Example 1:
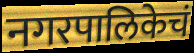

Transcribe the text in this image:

नगरपालिकेचं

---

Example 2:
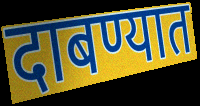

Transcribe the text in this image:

दाबण्यात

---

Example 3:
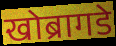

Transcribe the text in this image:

खोब्रागडे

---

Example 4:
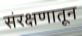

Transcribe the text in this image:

संरक्षणातून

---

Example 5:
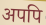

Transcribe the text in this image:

अपपि